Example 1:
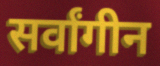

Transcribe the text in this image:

सर्वांगीन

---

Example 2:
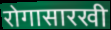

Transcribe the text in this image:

रोगासारखी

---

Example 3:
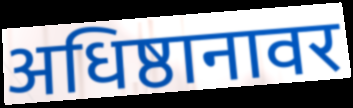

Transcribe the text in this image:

अधिष्ठानावर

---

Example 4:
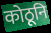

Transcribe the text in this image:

कोठूनि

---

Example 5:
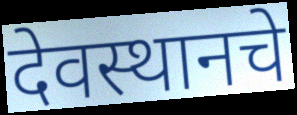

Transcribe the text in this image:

देवस्थानचे